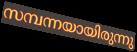
സമ്പന്നയായിരുന്നു